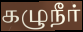
கழுநீர்